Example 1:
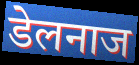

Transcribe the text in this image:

डेलनाज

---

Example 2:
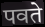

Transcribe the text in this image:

पवते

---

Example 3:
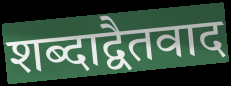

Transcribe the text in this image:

शब्दाद्वैतवाद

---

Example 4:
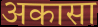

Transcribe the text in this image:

अकासा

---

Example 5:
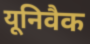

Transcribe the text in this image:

यूनिवैक